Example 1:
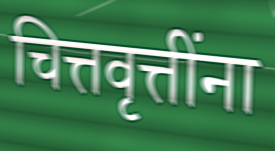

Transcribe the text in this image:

चित्तवृत्तींना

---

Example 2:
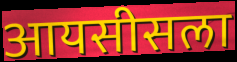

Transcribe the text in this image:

आयसीसला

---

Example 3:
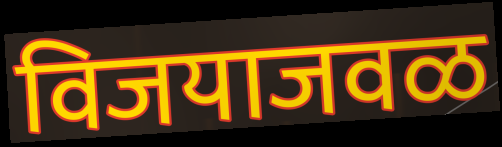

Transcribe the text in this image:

विजयाजवळ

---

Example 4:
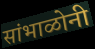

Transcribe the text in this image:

सांभाळोनी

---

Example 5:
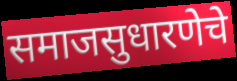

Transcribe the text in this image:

समाजसुधारणेचे